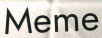
Meme